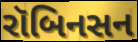
રૉબિનસન